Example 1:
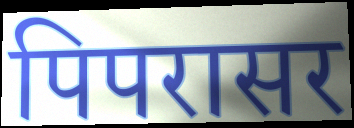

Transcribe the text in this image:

पिपरासर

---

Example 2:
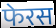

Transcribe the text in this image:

फेरस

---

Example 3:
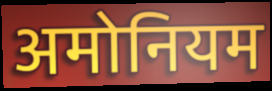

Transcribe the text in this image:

अमोनियम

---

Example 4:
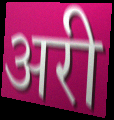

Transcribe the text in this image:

अरी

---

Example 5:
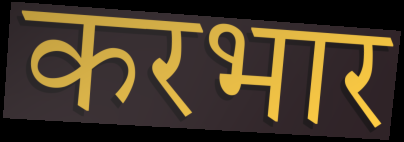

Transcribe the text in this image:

करभार